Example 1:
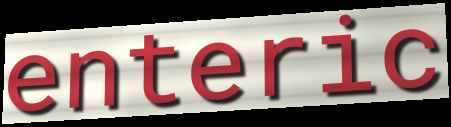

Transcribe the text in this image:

enteric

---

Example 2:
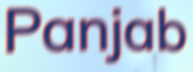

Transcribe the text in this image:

Panjab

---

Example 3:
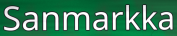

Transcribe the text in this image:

Sanmarkka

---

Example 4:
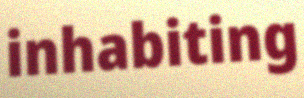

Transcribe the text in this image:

inhabiting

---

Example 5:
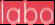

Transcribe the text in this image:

labo